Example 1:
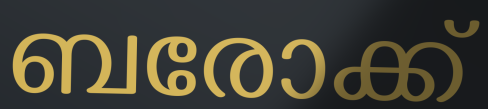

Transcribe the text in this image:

ബരോക്ക്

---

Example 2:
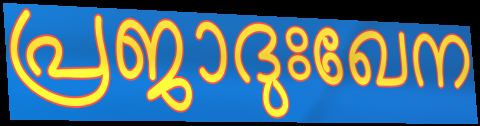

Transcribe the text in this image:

പ്രജാദുഃഖേന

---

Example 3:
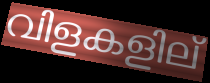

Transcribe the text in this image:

വിളകളില്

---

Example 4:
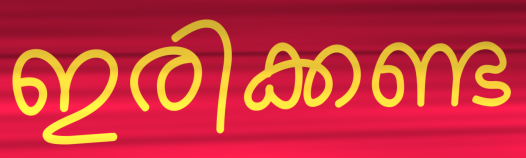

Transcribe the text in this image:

ഇരിക്കണ്ട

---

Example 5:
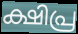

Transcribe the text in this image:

ക്ഷിപ്ര